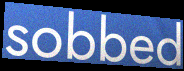
sobbed